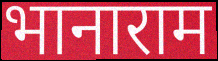
भानाराम